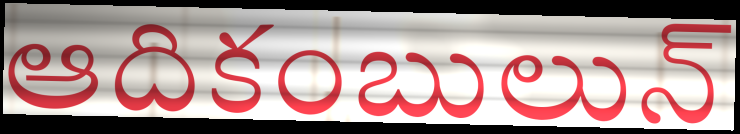
ఆదికంబులున్